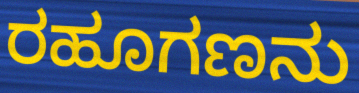
ರಹೂಗಣನು